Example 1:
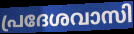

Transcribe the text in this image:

പ്രദേശവാസി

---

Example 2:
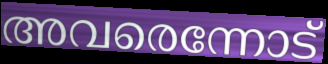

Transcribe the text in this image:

അവരെന്നോട്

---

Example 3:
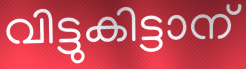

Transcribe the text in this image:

വിട്ടുകിട്ടാന്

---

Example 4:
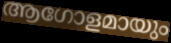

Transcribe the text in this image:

ആഗോളമായും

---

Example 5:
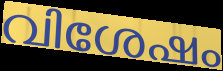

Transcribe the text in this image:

വിശേഷം